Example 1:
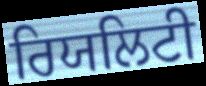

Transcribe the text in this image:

ਰਿਯਲਿਟੀ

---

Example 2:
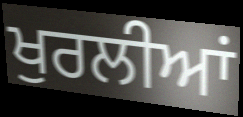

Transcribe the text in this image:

ਖੁਰਲੀਆਂ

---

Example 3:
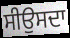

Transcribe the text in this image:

ਸੀਉਸਦਾ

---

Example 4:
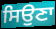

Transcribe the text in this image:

ਸਿਉਣਾ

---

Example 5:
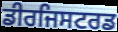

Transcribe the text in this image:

ਡੀਰਜਿਸਟਰਡ